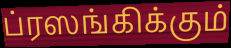
ப்ரஸங்கிக்கும்